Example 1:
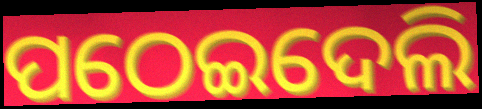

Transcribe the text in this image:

ପଠେଇଦେଲି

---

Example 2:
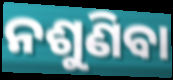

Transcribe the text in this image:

ନଶୁଣିବା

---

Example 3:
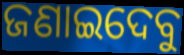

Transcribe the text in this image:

ଜଣାଇଦେବୁ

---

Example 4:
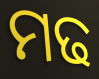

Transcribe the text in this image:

ମଢ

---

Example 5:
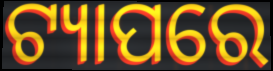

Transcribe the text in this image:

ଟ୍ୟାପରେ